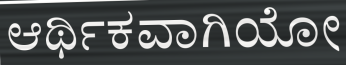
ಆರ್ಥಿಕವಾಗಿಯೋ